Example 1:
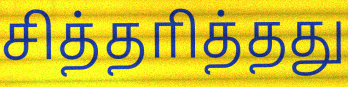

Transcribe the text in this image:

சித்தரித்தது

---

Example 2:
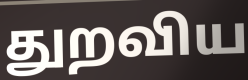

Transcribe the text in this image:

துறவிய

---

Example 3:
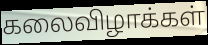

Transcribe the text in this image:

கலைவிழாக்கள்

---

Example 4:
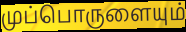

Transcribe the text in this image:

முப்பொருளையும்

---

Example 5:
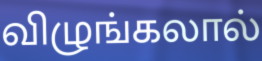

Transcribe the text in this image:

விழுங்கலால்